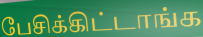
பேசிக்கிட்டாங்க